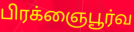
பிரக்ஞைபூர்வ